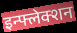
इन्फ्लेक्शन